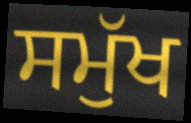
ਸਮੁੱਖ